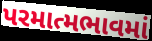
પરમાત્મભાવમાં